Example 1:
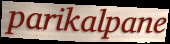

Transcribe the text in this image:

parikalpane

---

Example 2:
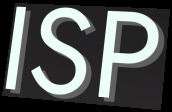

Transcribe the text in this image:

ISP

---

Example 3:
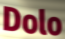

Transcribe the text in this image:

Dolo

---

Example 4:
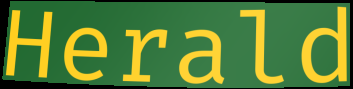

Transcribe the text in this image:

Herald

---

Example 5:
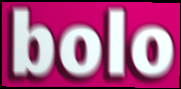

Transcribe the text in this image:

bolo